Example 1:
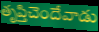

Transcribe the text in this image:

తృప్తిచెందేవాడు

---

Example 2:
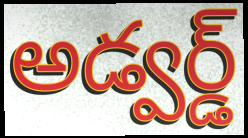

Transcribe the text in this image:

అడ్వర్డ్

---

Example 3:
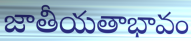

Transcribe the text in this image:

జాతీయతాభావం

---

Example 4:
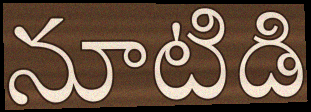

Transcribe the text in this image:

నూటిడి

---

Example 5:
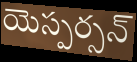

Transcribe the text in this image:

యెస్పర్సన్